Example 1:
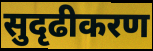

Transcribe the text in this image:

सुदृढीकरण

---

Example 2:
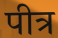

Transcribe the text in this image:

पीत्र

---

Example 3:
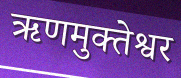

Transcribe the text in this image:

ऋणमुक्तेश्वर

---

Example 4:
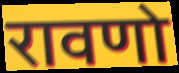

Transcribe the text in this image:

रावणो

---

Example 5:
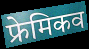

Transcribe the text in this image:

फ्रेमिकव